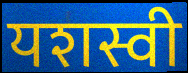
यशस्वी